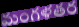
మంగళతర